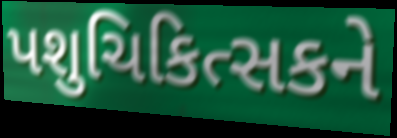
પશુચિકિત્સકને